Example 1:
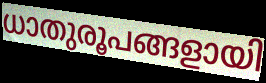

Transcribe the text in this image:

ധാതുരൂപങ്ങളായി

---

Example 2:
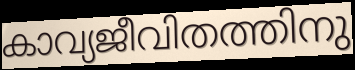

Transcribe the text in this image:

കാവ്യജീവിതത്തിനു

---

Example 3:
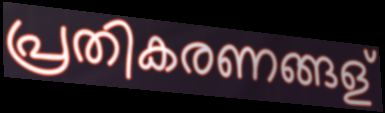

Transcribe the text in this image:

പ്രതികരണങ്ങള്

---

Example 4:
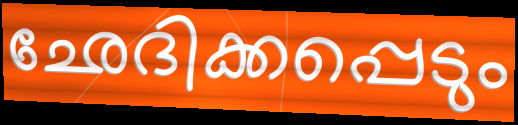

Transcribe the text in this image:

ഛേദിക്കപ്പെടും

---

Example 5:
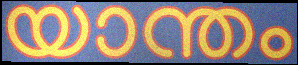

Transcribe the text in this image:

യാന്തം